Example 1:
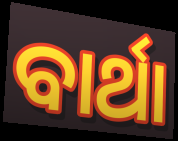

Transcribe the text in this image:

ବାର୍ଥା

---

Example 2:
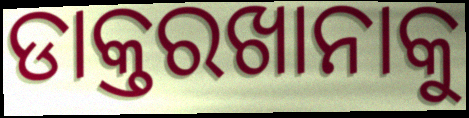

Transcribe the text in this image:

ଡାକ୍ତରଖାନାକୁ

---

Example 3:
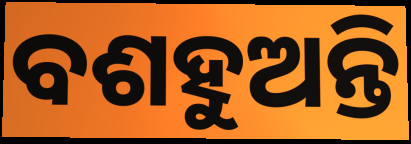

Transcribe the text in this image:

ବଶହୁଅନ୍ତି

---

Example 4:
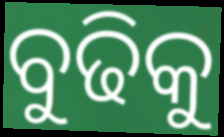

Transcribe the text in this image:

ବୁଢିକୁ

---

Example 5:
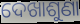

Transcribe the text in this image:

ଦେଖାଶୁଣା